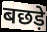
बछड़े